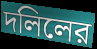
দলিলের